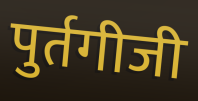
पुर्तगीजी